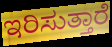
ಇರಿಸುತ್ತಾರೆ